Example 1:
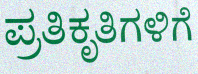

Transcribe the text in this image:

ಪ್ರತಿಕೃತಿಗಳಿಗೆ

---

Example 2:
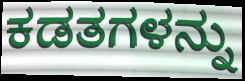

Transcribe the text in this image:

ಕಡತಗಳನ್ನು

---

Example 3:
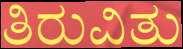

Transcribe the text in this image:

ತಿರುವಿತು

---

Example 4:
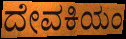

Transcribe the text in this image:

ದೇವಕಿಯಂ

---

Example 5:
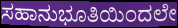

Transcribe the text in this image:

ಸಹಾನುಭೂತಿಯಿಂದಲೇ